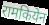
रामकियेन